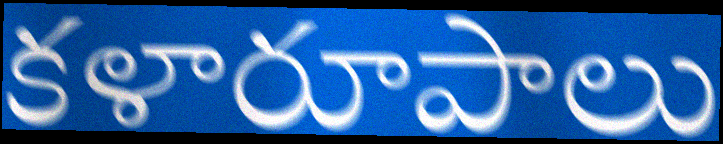
కళారూపాలు